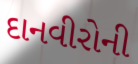
દાનવીરોની